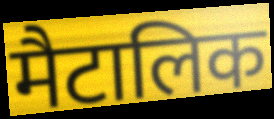
मैटालिक